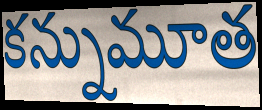
కన్నుమూత